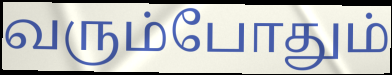
வரும்போதும்